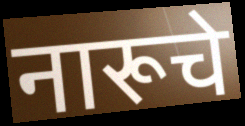
नारूचे